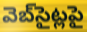
వెబ్‌సైట్లపై